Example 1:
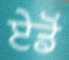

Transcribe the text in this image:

ਏਡੋਂ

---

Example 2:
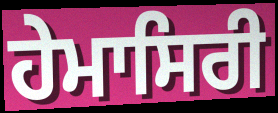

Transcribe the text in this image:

ਹੇਮਾਸਿਰੀ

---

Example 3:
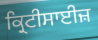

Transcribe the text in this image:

ਕ੍ਰਿਟੀਸਾਈਜ਼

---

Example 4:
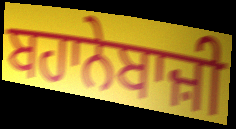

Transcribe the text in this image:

ਬਹਾਨੇਬਾਜ਼ੀ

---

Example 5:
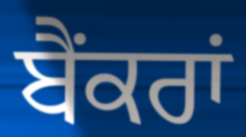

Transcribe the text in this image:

ਬੈਂਕਰਾਂ